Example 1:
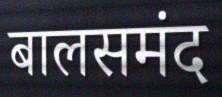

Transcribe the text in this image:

बालसमंद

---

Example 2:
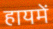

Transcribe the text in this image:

हायमें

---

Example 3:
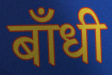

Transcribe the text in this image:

बाँधी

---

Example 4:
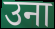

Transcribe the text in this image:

उना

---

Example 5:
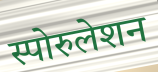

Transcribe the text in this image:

स्पोरुलेशन